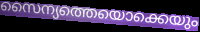
സൈന്യത്തെയൊക്കെയും